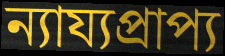
ন্যায্যপ্রাপ্য